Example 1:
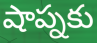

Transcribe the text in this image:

షాప్నకు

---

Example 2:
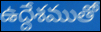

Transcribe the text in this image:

ఉద్దేశముతో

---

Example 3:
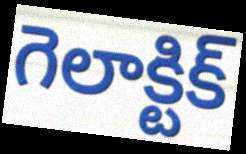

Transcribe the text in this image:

గెలాక్టిక్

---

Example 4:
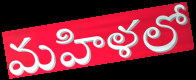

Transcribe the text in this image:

మహిళలో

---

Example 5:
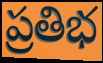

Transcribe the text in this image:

ప్రతిభ